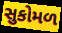
સુકોમળ